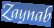
Zaynab